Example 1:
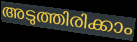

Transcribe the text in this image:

അടുത്തിരിക്കാം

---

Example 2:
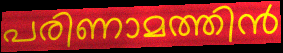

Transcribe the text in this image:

പരിണാമത്തിൻ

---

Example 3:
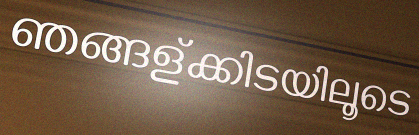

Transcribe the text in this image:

ഞങ്ങള്ക്കിടയിലൂടെ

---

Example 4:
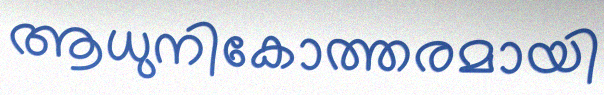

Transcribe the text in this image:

ആധുനികോത്തരമായി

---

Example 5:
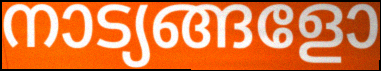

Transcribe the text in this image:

നാട്യങ്ങളോ